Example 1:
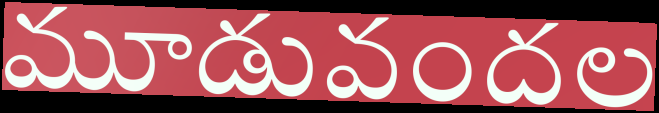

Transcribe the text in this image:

మూడువందల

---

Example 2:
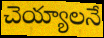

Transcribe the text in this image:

చెయ్యాలనే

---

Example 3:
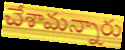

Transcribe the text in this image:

చేశామన్నారు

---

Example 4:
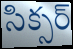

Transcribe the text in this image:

సిక్సర్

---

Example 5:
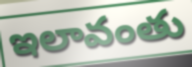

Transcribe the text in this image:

ఇలావంతు